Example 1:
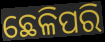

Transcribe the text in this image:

ଛେଳିପରି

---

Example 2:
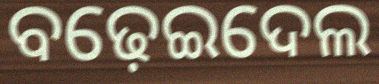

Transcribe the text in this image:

ବଢ଼େଇଦେଲ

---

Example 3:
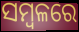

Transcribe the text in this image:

ସମ୍ବଳରେ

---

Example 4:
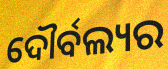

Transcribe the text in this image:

ଦୌର୍ବଲ୍ୟର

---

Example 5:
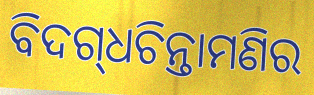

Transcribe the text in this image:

ବିଦଗ୍‌ଧଚିନ୍ତାମଣିର